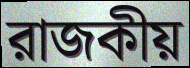
রাজকীয়